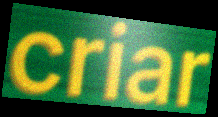
criar